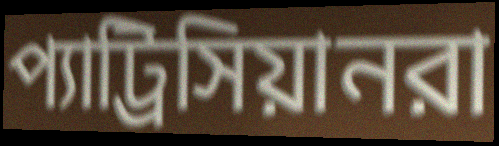
প্যাট্রিসিয়ানরা